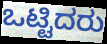
ಒಟ್ಟಿದರು